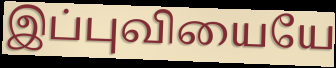
இப்புவியையே